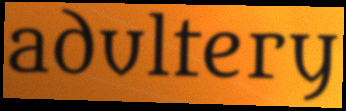
adultery